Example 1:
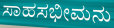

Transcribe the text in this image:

ಸಾಹಸಭೀಮನು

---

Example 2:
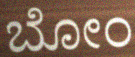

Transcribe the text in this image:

ಬೋಂ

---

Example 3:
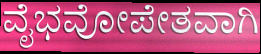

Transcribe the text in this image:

ವೈಭವೋಪೇತವಾಗಿ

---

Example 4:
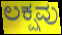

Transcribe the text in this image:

ಲಕ್ಷವು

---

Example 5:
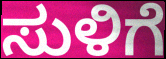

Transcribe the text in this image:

ಸುಳಿಗೆ